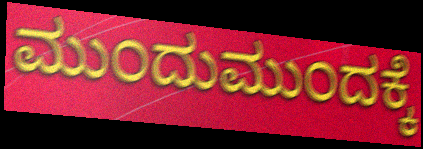
ಮುಂದುಮುಂದಕ್ಕೆ